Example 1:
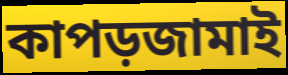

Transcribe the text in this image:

কাপড়জামাই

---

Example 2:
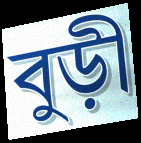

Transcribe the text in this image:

বুড়ী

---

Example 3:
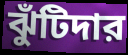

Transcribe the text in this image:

ঝুঁটিদার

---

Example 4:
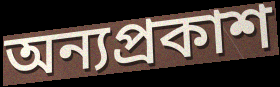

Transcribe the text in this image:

অন্যপ্রকাশ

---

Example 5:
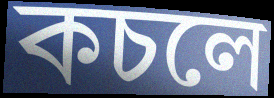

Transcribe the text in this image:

কচলে